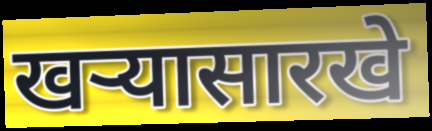
खऱ्यासारखे